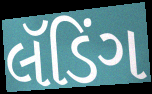
લૅડિંગ